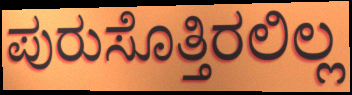
ಪುರುಸೊತ್ತಿರಲಿಲ್ಲ